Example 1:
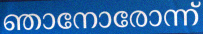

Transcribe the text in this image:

ഞാനോരോന്ന്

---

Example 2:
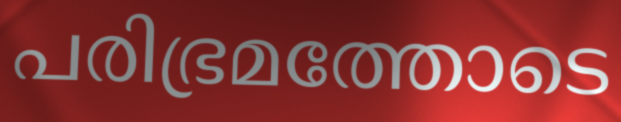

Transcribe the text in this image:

പരിഭ്രമത്തോടെ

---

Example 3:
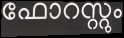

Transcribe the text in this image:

ഫോറസ്റ്റും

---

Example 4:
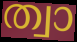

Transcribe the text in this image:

ത്വാ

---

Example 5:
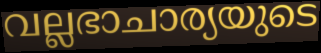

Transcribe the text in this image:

വല്ലഭാചാര്യയുടെ